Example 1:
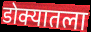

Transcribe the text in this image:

डोक्यातला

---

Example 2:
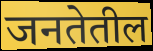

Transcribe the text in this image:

जनतेतील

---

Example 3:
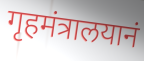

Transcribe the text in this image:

गृहमंत्रालयानं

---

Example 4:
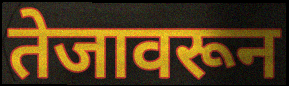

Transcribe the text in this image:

तेजावरून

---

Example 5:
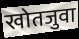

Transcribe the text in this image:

खोतजुवा